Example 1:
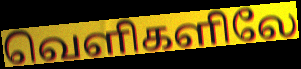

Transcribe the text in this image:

வெளிகளிலே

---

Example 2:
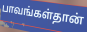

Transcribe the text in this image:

பாவங்கள்தான்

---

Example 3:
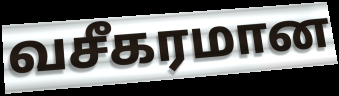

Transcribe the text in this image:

வசீகரமான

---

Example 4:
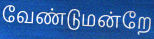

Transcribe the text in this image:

வேண்டுமன்றே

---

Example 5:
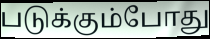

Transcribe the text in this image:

படுக்கும்போது